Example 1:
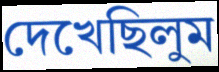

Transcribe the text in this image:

দেখেছিলুম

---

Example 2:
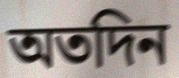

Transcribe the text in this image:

অতদিন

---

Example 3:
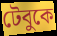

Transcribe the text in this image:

টেবুকে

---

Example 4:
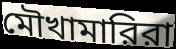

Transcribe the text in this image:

মৌখামারিরা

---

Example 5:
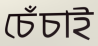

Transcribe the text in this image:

চেঁচাই